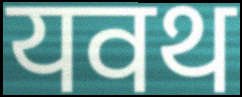
यवथ